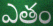
ఎతం